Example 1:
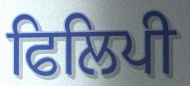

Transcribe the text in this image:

ਫਿਲਿਪੀ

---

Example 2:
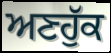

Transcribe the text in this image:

ਅਣਹੁੱਕ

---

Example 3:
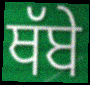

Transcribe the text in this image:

ਥੱਬੇ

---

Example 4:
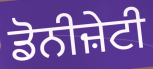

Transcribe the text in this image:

ਡੋਨੀਜ਼ੇਟੀ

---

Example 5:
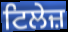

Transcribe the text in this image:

ਟਿਲੇਜ਼